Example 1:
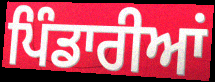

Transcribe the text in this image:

ਪਿੰਡਾਰੀਆਂ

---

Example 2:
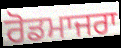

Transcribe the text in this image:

ਰੋਡਮਾਜਰਾ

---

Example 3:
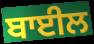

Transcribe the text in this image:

ਬਾਈਲ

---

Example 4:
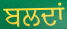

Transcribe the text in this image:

ਬਲਦਾਂ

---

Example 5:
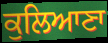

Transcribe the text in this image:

ਕੁਲਿਆਣਾ